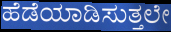
ಹೆಡೆಯಾಡಿಸುತ್ತಲೇ